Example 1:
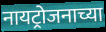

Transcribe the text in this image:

नायट्रोजनाच्या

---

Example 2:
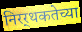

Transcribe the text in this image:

निरर्थकतेच्या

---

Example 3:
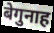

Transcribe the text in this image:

बेगुनाह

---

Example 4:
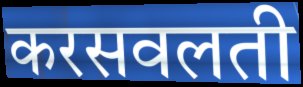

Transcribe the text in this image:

करसवलती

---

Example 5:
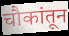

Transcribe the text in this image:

चौकांतून